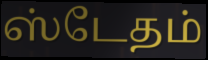
ஸ்டேதம்